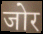
जोर